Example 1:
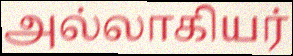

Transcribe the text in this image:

அல்லாகியர்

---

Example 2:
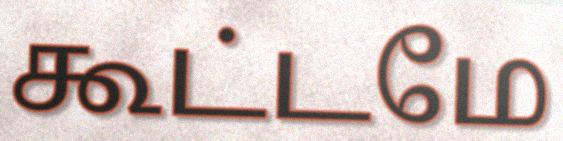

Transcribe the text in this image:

கூட்டமே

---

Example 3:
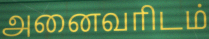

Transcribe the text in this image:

அனைவரிடம்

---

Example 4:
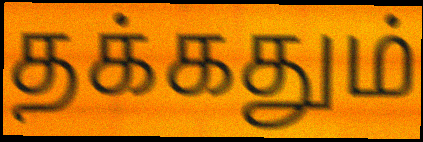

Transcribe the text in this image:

தக்கதும்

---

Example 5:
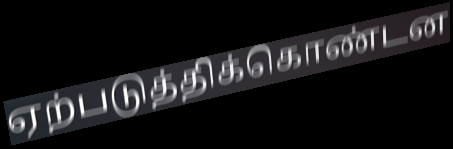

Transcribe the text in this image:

ஏற்படுத்திக்கொண்டன